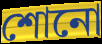
শোনো